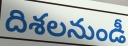
దిశలనుండీ